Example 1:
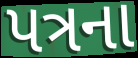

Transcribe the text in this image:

પત્રના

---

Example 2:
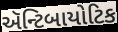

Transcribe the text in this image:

ઍન્ટિબાયોટિક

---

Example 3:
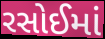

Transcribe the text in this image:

રસોઈમાં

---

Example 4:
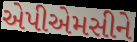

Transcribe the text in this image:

એપીએમસીને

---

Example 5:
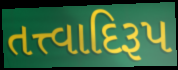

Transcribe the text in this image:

તત્ત્વાદિરૂપ